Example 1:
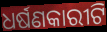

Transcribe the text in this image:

ଧର୍ଷଣକାରୀଟି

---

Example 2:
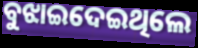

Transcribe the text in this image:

ବୁଝାଇଦେଇଥିଲେ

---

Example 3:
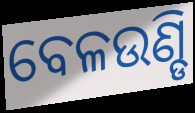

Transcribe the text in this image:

ବେଳଉଣ୍ଡି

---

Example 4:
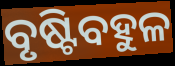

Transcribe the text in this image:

ବୃଷ୍ଟିବହୁଳ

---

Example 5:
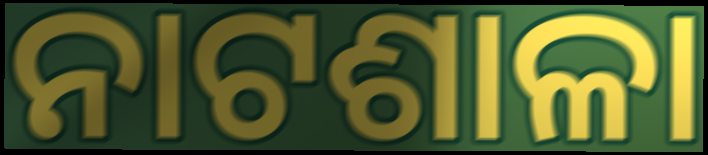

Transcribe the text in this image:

ନାଟଶାଳା